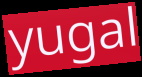
yugal